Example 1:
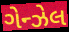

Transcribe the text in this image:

ગેન્ઝેલ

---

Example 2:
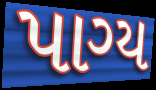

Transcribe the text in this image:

પાગ્ય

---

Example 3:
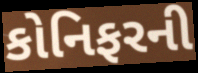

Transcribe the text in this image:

કોનિફરની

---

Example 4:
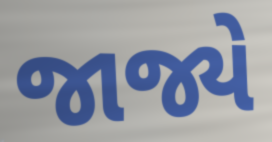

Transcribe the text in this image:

જાજ્યે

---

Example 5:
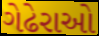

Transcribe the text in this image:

ગેઢેરાઓ